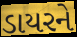
ડાયરને